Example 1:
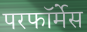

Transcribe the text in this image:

परफॉर्मेस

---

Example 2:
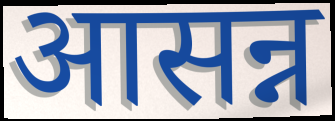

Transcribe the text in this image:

आसन्न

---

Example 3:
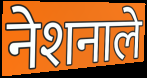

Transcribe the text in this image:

नेशनाले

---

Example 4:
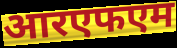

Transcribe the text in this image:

आरएफएम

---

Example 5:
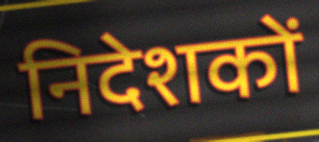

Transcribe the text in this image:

निदेशकों